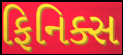
ફિનિક્સ